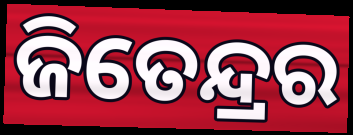
ଜିତେନ୍ଦ୍ରର